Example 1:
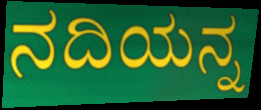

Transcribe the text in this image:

ನದಿಯನ್ನ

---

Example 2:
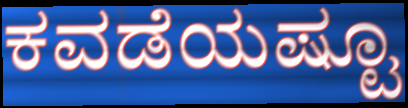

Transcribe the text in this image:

ಕವಡೆಯಷ್ಟೂ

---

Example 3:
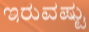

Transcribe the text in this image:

ಇರುವಷ್ಟು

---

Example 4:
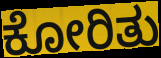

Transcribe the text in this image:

ಕೋರಿತು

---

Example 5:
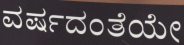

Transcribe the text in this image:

ವರ್ಷದಂತೆಯೇ